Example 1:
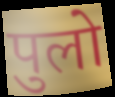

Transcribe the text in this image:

पुलो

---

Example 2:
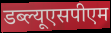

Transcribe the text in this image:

डब्ल्यूएसपीएम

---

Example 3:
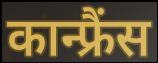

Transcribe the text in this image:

कान्फ्रैंस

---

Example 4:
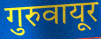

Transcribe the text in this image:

गुरुवायूर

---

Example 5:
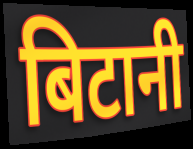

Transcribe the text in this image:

बिटानी